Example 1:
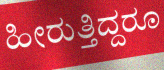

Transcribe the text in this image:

ಹೀರುತ್ತಿದ್ದರೂ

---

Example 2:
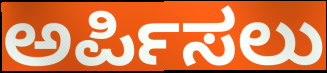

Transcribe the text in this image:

ಅರ್ಪಿಸಲು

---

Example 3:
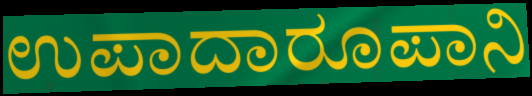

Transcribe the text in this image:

ಉಪಾದಾರೂಪಾನಿ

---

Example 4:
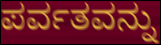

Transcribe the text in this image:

ಪರ್ವತವನ್ನು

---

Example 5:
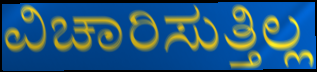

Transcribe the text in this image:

ವಿಚಾರಿಸುತ್ತಿಲ್ಲ